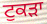
ਟੁਕੜਾ